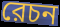
রেচন